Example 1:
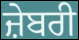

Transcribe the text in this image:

ਜ਼ੇਬਰੀ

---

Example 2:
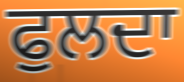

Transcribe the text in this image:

ਫੁਲਦਾ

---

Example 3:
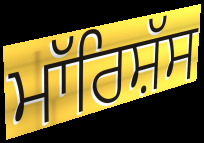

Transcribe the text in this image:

ਮਾੱਰਿਸ਼ੱਸ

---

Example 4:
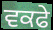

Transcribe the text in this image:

ਵਕਫੇ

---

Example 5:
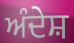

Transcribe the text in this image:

ਅੰਦੇਸ਼